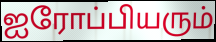
ஐரோப்பியரும்